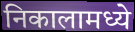
निकालामध्ये